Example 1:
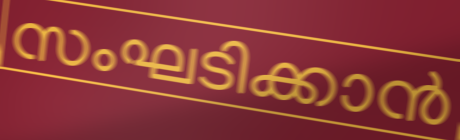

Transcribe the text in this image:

സംഘടിക്കാൻ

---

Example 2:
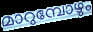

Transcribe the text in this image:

മാറുമ്പോഴും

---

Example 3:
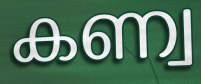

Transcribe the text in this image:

കണ്വ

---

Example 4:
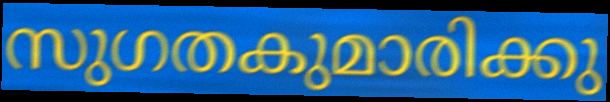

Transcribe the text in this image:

സുഗതകുമാരിക്കു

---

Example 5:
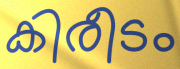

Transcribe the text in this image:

കിരീടം